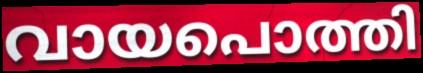
വായപൊത്തി